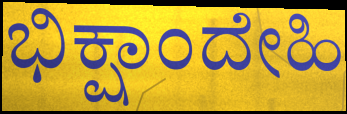
ಭಿಕ್ಷಾಂದೇಹಿ